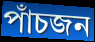
পাঁচজন